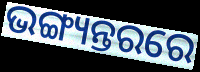
ଭଙ୍ଗ୍ୟନ୍ତରରେ